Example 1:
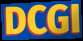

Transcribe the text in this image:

DCGI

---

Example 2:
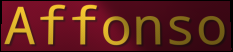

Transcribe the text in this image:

Affonso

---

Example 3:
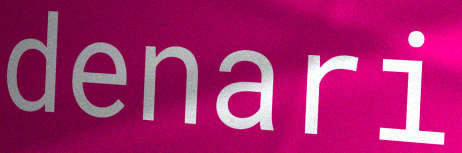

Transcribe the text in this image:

denari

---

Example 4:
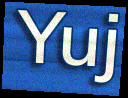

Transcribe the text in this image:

Yuj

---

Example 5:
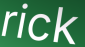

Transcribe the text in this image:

rick